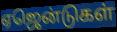
ஏஜென்டுகள்